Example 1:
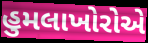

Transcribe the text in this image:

હુમલાખોરોએ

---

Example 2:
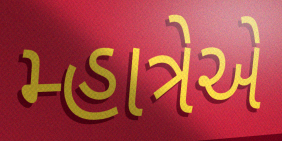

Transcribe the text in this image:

મ્હાત્રેએ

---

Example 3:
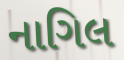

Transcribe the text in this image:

નાગિલ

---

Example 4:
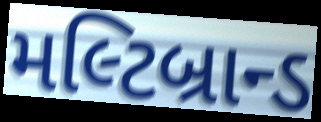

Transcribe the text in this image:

મલ્ટિબ્રાન્ડ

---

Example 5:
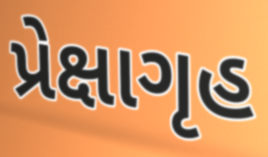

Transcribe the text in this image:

પ્રેક્ષાગૃહ